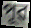
পূৱ